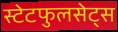
स्टेटफुलसेट्स